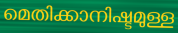
മെതിക്കാനിഷ്ടമുള്ള